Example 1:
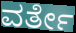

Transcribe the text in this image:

ವರ್ತೇ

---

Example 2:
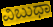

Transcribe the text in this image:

ವಿಬುಧಾ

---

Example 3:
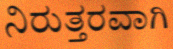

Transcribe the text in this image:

ನಿರುತ್ತರವಾಗಿ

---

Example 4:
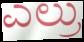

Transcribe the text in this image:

ಎಲ್ರು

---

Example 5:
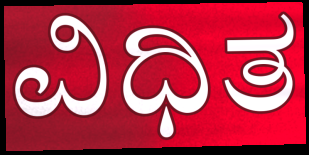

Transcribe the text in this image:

ವಿಧಿತ